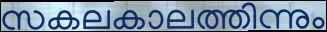
സകലകാലത്തിന്നും